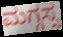
ಮಗ್ಗಸ್ಸ